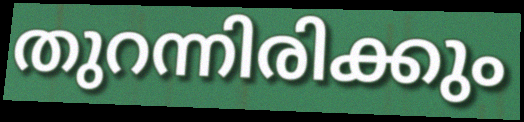
തുറന്നിരിക്കും